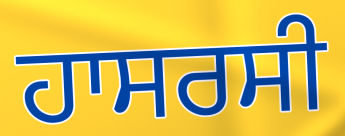
ਹਾਸਰਸੀ